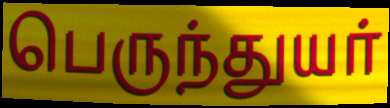
பெருந்துயர்